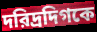
দরিদ্রদিগকে